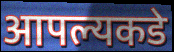
आपल्यकडे